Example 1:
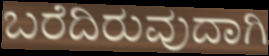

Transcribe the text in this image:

ಬರೆದಿರುವುದಾಗಿ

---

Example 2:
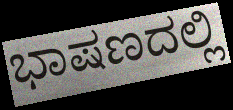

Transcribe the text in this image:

ಭಾಷಣದಲ್ಲಿ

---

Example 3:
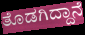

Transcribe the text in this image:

ತೊಡಗಿದ್ದಾನೆ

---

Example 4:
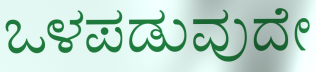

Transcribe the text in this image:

ಒಳಪಡುವುದೇ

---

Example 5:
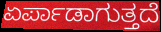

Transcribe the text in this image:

ಏರ್ಪಾಡಾಗುತ್ತದೆ